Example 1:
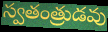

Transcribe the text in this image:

స్వతంత్రుడవు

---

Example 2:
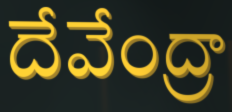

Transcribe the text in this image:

దేవేంద్రా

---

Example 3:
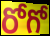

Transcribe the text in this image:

రోగో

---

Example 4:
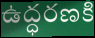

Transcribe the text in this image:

ఉద్ధరణకి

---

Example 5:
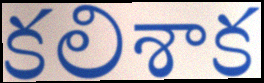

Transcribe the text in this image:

కలిశాక